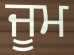
ਜੂਮ